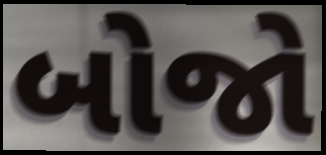
બોજો